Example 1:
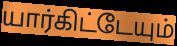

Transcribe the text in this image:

யார்கிட்டேயும்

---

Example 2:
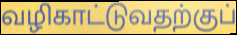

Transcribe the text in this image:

வழிகாட்டுவதற்குப்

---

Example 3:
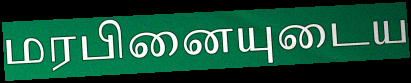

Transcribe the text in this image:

மரபினையுடைய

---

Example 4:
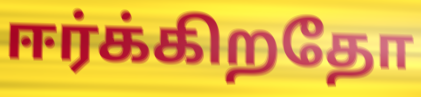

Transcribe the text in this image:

ஈர்க்கிறதோ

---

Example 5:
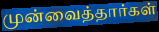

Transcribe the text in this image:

முன்வைத்தார்கள்